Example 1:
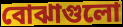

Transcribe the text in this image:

বোঝাগুলো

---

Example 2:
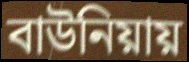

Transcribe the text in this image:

বাউনিয়ায়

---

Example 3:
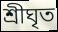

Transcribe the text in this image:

শ্রীঘৃত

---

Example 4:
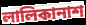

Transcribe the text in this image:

লালিকানাশ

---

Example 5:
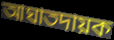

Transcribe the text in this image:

আঘাতদায়ক